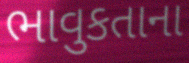
ભાવુકતાના